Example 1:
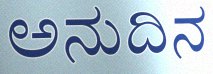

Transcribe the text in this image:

ಅನುದಿನ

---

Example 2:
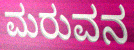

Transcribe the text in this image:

ಮರುವನ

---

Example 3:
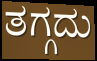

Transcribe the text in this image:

ತಗ್ಗದು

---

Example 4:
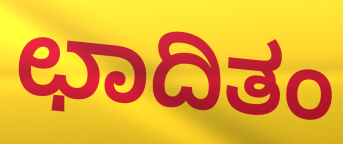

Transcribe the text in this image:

ಛಾದಿತಂ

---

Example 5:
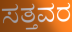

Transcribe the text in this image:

ಸತ್ತವರ